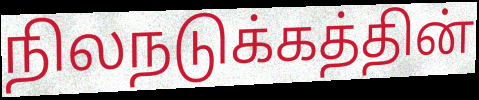
நிலநடுக்கத்தின்